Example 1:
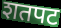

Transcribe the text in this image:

शतपट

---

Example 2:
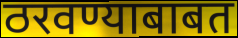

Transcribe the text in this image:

ठरवण्याबाबत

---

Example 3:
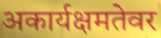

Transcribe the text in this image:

अकार्यक्षमतेवर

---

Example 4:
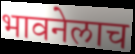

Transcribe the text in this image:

भावनेलाच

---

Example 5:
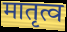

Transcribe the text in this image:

मातृत्व